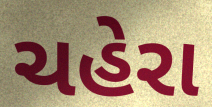
ચહેરા